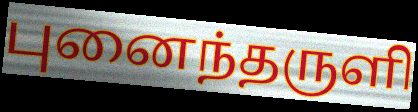
புனைந்தருளி